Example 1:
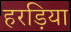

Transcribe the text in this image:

हरड़िया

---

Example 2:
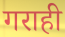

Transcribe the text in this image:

गराही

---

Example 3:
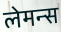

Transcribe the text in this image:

लेमन्स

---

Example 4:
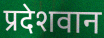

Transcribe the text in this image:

प्रदेशवान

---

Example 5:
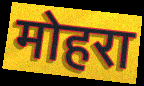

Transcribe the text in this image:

मोहरा